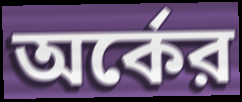
অর্কের